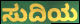
ಸುದಿಯ